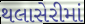
થલાસેરીમાં